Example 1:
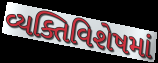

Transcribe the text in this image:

વ્યક્તિવિશેષમાં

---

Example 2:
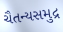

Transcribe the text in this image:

ચૈતન્યસમુદ્ર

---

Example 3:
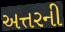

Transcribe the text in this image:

અત્તરની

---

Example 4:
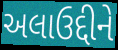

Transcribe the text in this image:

અલાઉદ્દીને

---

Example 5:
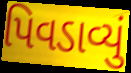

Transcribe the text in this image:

પિવડાવ્યું